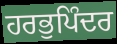
ਹਰਭੁਪਿੰਦਰ